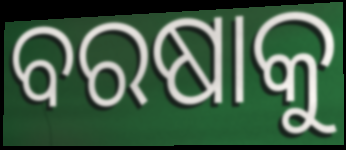
ବରଷାକୁ